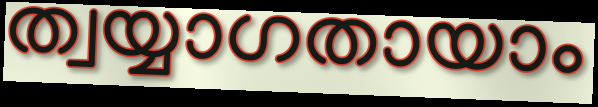
ത്വയ്യാഗതായാം